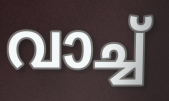
വാച്ച്